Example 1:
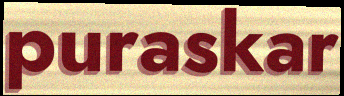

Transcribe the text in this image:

puraskar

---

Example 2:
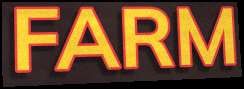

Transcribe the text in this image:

FARM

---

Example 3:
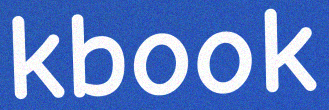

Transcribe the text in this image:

kbook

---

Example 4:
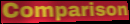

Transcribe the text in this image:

Comparison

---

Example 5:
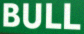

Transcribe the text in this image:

BULL